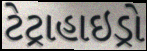
ટેટ્રાહાઇડ્રો